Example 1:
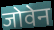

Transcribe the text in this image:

जोवेन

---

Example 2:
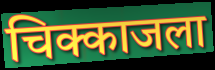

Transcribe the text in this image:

चिक्काजला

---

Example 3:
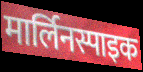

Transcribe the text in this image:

मार्लिनस्पाइक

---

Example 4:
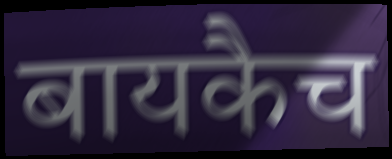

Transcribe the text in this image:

बायकैच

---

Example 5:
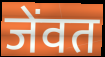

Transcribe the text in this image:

जेंवत